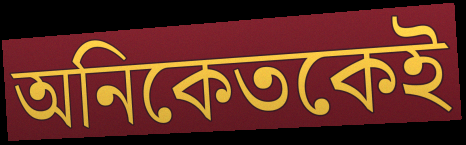
অনিকেতকেই